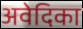
अवेदिका